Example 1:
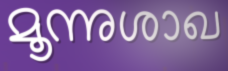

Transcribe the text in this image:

മൂന്നുശാഖ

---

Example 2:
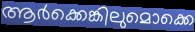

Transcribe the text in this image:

ആർക്കെങ്കിലുമൊക്കെ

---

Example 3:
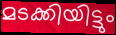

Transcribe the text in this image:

മടക്കിയിട്ടും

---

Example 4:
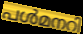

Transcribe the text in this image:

പൾമനറി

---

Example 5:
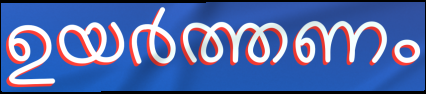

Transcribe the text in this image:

ഉയർത്തണം